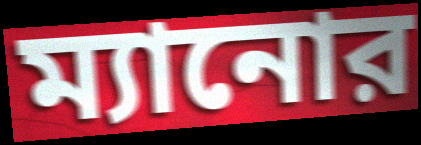
ম্যানোর